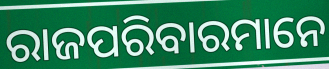
ରାଜପରିବାରମାନେ